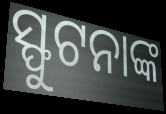
ସ୍ଫୁଟନାଙ୍କ